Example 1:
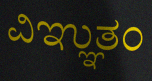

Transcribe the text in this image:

ವಿಞ್ಞುತಂ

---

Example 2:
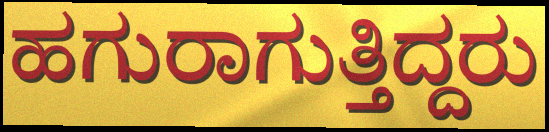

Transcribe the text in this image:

ಹಗುರಾಗುತ್ತಿದ್ದರು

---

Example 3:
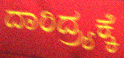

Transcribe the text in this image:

ದಾರಿದ್ರ್ಯಕ್ಕೆ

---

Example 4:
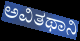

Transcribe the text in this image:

ಅವಿತಥಾನಿ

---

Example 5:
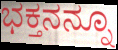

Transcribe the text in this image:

ಭಕ್ತನನ್ನೂ